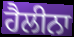
ਹੈਲੀਨਾ